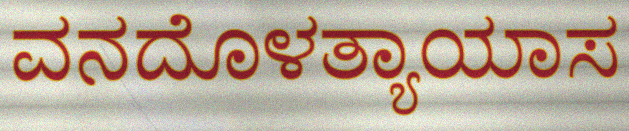
ವನದೊಳತ್ಯಾಯಾಸ